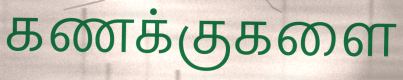
கணக்குகளை